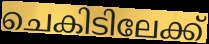
ചെകിടിലേക്ക്